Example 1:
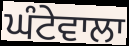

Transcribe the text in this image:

ਘੰਟੇਵਾਲਾ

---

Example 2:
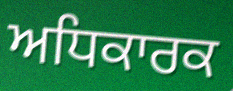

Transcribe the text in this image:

ਅਧਿਕਾਰਕ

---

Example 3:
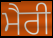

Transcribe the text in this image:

ਮੈਰੀ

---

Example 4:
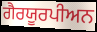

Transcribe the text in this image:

ਗੈਰਯੂਰਪੀਅਨ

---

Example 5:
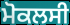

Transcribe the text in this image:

ਮੋਕਲਸੀ